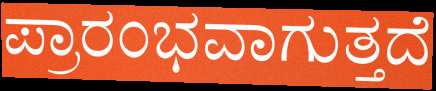
ಪ್ರಾರಂಭವಾಗುತ್ತದೆ